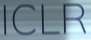
ICLR